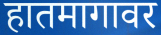
हातमागावर